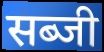
सब्जी